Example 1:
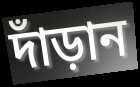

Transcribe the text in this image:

দাঁড়ান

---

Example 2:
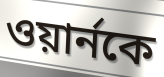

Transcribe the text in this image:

ওয়ার্নকে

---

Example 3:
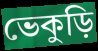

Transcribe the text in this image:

ভেকুড়ি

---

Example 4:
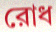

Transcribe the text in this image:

রোধ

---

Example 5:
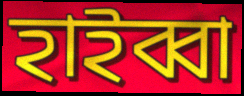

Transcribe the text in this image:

হাইব্বা